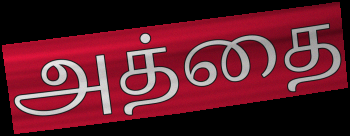
அத்தை